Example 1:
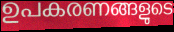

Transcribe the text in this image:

ഉപകരണങ്ങളുടെ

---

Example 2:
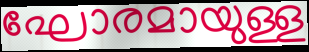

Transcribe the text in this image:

ഘോരമായുള്ള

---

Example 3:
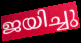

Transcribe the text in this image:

ജയിച്ചു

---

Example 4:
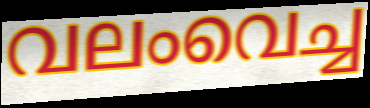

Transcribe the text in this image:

വലംവെച്ച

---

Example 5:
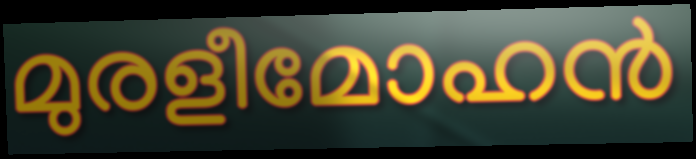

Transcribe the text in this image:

മുരളീമോഹൻ